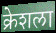
क्रेशला